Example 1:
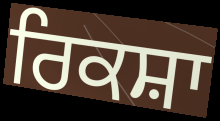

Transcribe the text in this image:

ਰਿਕਸ਼ਾ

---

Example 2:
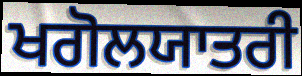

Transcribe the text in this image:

ਖਗੋਲਯਾਤਰੀ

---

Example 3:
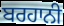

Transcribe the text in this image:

ਬਰਹਾਨੀ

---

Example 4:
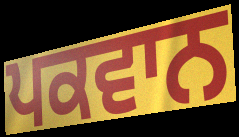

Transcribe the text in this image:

ਪਕਵਾਨ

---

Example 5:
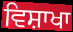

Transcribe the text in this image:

ਵਿਸ਼ਾਖਾ